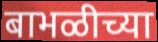
बाभळीच्या